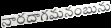
నారదాగమనంబును